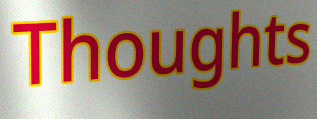
Thoughts